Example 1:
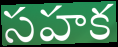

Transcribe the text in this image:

సహక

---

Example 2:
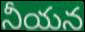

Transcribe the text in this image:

నీయన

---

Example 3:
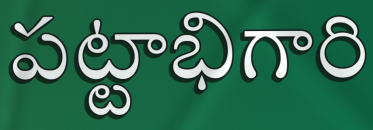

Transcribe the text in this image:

పట్టాభిగారి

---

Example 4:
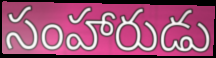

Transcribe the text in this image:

సంహారుడు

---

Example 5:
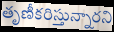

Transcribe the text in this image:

తృణీకరిస్తున్నారని